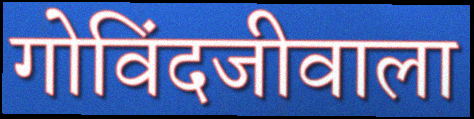
गोविंदजीवाला